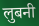
लुबनी